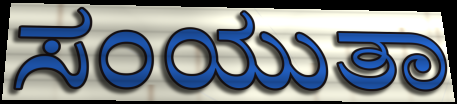
ಸಂಯುತಾ